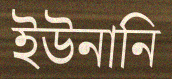
ইউনানি